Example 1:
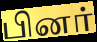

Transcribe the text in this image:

பினர்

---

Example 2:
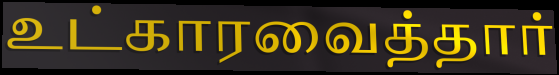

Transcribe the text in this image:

உட்காரவைத்தார்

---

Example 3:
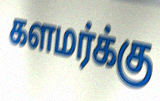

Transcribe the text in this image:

களமர்க்கு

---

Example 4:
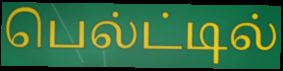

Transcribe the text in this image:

பெல்ட்டில்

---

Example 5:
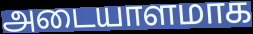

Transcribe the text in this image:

அடையாளமாக